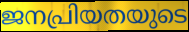
ജനപ്രിയതയുടെ